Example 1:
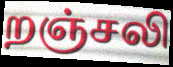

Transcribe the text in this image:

றஞ்சலி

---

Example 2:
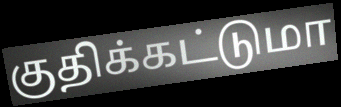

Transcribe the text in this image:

குதிக்கட்டுமா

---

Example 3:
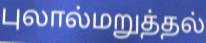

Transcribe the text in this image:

புலால்மறுத்தல்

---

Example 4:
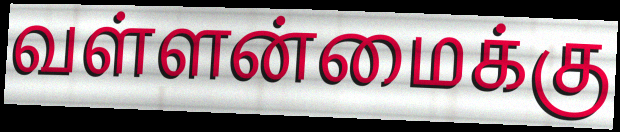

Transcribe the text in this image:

வள்ளன்மைக்கு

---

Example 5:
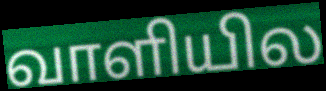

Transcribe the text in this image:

வாளியில